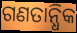
ଗଣତାନ୍ଧିକ